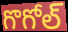
గొగోల్